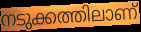
നടുക്കത്തിലാണ്